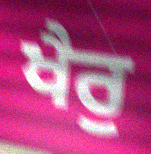
ਖੈਰੁ